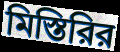
মিস্তিরির